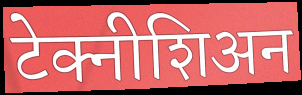
टेक्नीशिअन